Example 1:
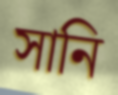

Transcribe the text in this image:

সানি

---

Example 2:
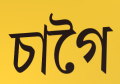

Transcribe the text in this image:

চাগৈ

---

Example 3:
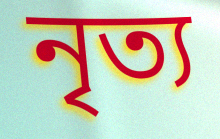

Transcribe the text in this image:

নৃত্য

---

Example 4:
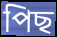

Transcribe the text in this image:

পিছ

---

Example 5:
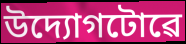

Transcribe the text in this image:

উদ্যোগটোৱে